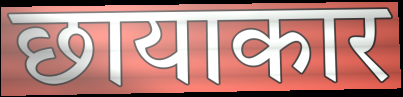
छायाकार